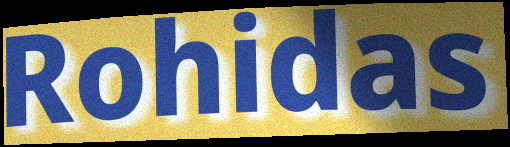
Rohidas